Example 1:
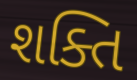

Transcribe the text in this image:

શક્તિ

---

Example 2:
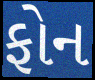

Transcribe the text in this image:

ફોન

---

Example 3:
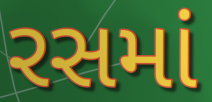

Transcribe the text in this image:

રસમાં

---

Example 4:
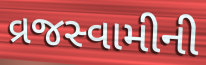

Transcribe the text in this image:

વ્રજસ્વામીની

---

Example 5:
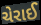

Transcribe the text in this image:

ચેરાઈ